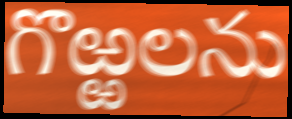
గొఱ్ఱలను